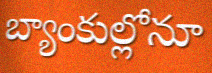
బ్యాంకుల్లోనూ